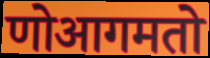
णोआगमतो